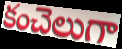
కంచెలుగా